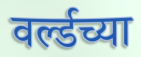
वर्ल्डच्या